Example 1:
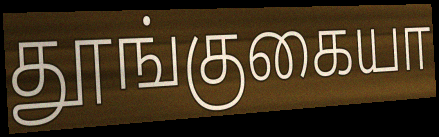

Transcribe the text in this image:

தூங்குகையா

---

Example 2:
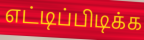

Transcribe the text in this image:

எட்டிப்பிடிக்க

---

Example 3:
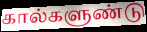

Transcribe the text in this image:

கால்களுண்டு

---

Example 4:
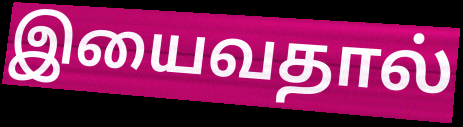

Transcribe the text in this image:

இயைவதால்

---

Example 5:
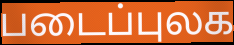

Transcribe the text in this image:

படைப்புலக